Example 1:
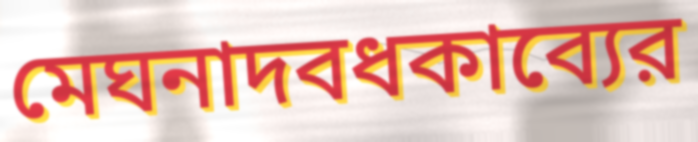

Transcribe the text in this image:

মেঘনাদবধকাব্যের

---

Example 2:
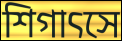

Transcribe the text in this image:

শিগাৎসে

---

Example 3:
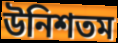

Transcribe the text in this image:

উনিশতম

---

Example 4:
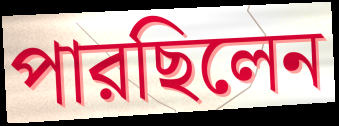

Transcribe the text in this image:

পারছিলেন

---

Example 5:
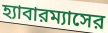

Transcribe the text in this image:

হ্যাবারম্যাসের